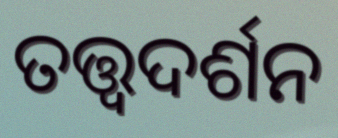
ତତ୍ତ୍ଵଦର୍ଶନ